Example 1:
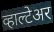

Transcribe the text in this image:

व्हाल्टेअर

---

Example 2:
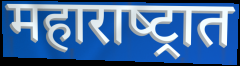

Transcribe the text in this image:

महाराष्‍ट्रात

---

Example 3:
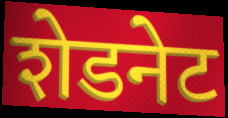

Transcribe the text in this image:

शेडनेट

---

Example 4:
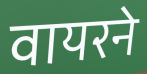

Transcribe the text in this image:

वायरने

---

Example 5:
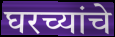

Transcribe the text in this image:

घरच्यांचे